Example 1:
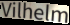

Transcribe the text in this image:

Vilhelm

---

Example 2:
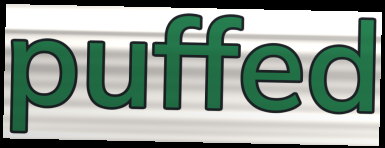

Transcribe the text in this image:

puffed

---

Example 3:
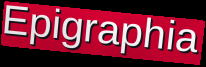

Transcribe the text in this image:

Epigraphia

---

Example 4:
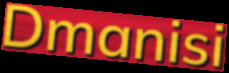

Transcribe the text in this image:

Dmanisi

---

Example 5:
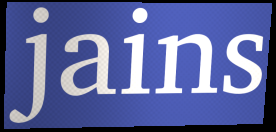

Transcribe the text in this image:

jains